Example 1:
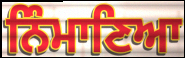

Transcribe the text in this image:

ਨਿੰਮਾਣਿਆ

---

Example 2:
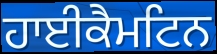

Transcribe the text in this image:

ਹਾਈਕੈਮਟਿਨ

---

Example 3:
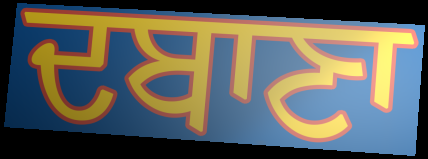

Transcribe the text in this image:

ਦਬਾਣਾ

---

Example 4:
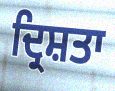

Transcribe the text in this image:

ਦ੍ਰਿਸ਼ਤਾ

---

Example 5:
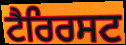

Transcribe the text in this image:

ਟੈਰਿਰਸਟ